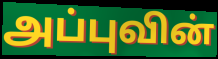
அப்புவின்